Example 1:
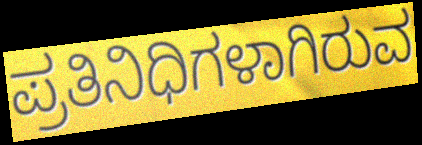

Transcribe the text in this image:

ಪ್ರತಿನಿಧಿಗಳಾಗಿರುವ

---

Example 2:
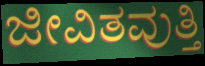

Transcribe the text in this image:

ಜೀವಿತವುತ್ತಿ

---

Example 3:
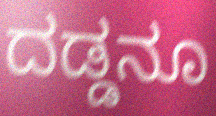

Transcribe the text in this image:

ದಡ್ಡನೂ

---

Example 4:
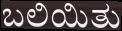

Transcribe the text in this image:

ಬಲಿಯಿತು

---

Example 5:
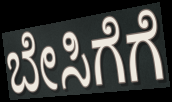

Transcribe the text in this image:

ಬೇಸಿಗೆಗೆ